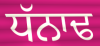
ਧੱਨਾਢ